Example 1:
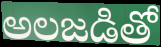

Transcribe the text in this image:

అలజడితో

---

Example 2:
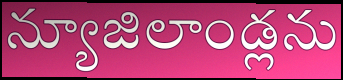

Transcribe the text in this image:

న్యూజిలాండ్లను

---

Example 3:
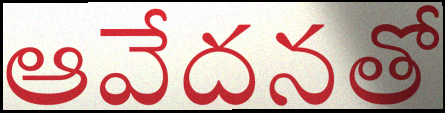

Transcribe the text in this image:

ఆవేదనతో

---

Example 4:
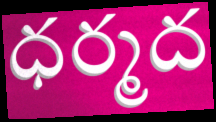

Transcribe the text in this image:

ధర్మద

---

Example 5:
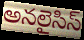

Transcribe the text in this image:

అనలైసిస్